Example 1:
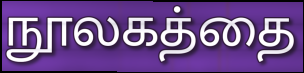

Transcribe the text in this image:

நூலகத்தை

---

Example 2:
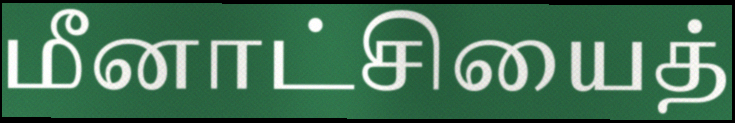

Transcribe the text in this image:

மீனாட்சியைத்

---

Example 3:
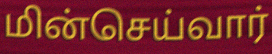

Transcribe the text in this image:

மின்செய்வார்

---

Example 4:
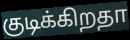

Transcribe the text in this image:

குடிக்கிறதா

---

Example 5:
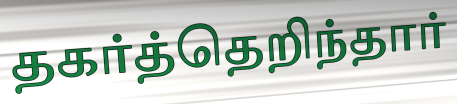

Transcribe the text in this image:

தகர்த்தெறிந்தார்